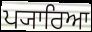
ਪ੍ਯਾਰਿਆ